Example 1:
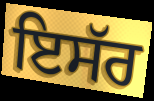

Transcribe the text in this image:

ਇਸੱਰ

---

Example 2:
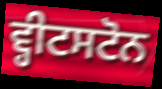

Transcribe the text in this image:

ਵ੍ਹੀਟਸਟੋਨ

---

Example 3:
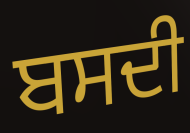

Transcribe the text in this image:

ਬਸਦੀ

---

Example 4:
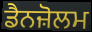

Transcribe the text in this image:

ਡੈਨਜ਼ੋਲਮ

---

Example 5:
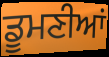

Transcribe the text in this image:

ਡੂਮਣੀਆਂ